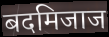
बदमिजाज